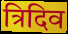
त्रिदिव